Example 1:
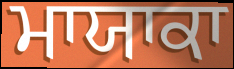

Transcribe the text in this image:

ਮਾਯਾਕਾ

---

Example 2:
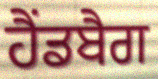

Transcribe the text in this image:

ਹੈਂਡਬੈਗ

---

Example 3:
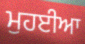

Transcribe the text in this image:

ਮੁਹਈਆ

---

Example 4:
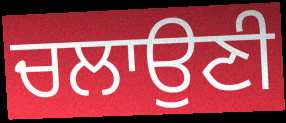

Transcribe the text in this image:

ਚਲਾਉਣੀ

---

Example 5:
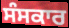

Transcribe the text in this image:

ਸੰਸਕਾਰ